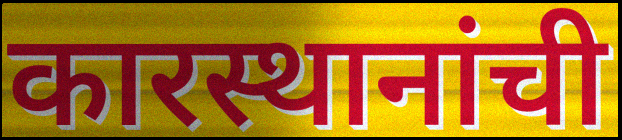
कारस्थानांची